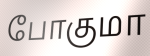
போகுமா